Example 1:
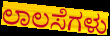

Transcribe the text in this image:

ಲಾಲಸೆಗಳು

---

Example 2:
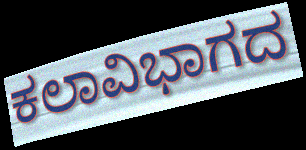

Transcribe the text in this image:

ಕಲಾವಿಭಾಗದ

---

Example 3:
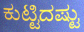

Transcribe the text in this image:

ಕುಟ್ಟಿದಷ್ಟು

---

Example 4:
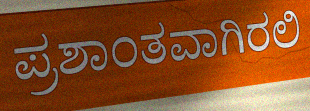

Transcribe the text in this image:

ಪ್ರಶಾಂತವಾಗಿರಲಿ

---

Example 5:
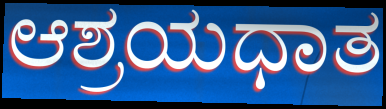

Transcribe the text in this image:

ಆಶ್ರಯಧಾತ